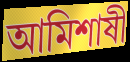
আমিশাষী